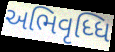
અભિવૃધ્ધિ